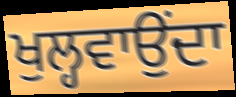
ਖੁਲ੍ਹਵਾਉਂਦਾ